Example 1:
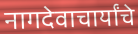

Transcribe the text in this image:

नागदेवाचार्यांचे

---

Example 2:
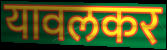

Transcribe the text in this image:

यावलकर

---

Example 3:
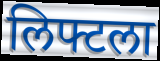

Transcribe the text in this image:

लिफ्टला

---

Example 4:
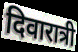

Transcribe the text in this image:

दिवारात्री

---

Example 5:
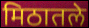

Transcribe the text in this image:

मिठातले